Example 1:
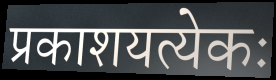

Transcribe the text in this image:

प्रकाशयत्येकः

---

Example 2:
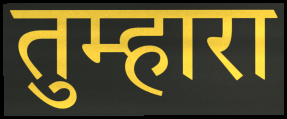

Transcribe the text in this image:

तुम्‍हारा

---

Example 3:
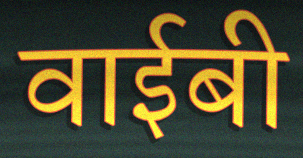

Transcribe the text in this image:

वाईबी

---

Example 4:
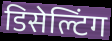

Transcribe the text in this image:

डिसेल्टिंग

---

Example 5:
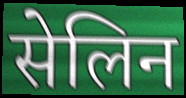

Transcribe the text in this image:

सेलिन